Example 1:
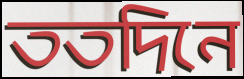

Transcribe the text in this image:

ততদিনে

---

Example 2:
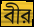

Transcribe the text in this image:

বীর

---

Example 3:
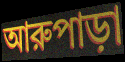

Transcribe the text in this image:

আরুপাড়া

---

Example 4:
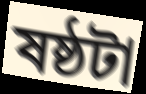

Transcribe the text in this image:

ষষ্ঠটা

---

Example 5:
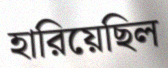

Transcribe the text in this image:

হারিয়েছিল